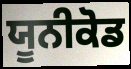
ਯੂਨੀਕੋਡ